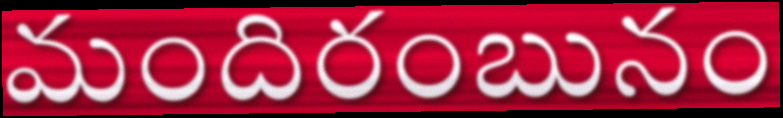
మందిరంబునం